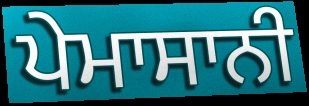
ਪੇਮਾਸਾਨੀ